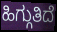
ಹಿಗ್ಗುತಿದೆ